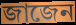
জাজেন